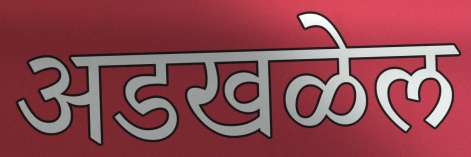
अडखळेल